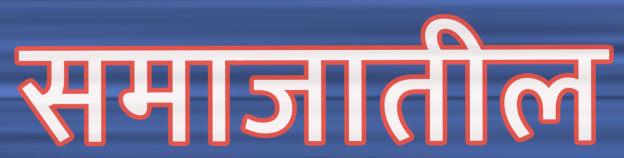
समाजातील